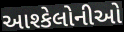
આશ્કેલોનીઓ